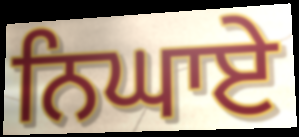
ਨਿਘਾਏ